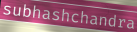
subhashchandra